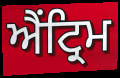
ਐਂਟ੍ਰਿਮ